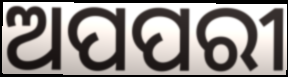
ଅପପରୀ